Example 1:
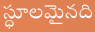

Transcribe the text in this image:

స్ధూలమైనది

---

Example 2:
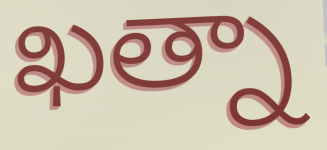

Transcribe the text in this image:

ఖత్నా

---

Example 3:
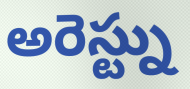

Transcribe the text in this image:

అరెస్ట్ను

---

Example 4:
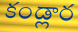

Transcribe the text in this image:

కండ్లార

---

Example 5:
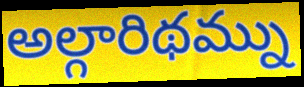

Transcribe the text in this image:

అల్గారిథమ్ను